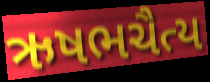
ઋષભચૈત્ય